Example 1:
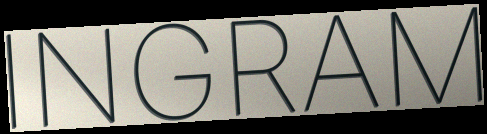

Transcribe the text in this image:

INGRAM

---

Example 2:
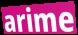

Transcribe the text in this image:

arime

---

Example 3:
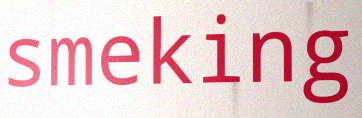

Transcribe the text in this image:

smeking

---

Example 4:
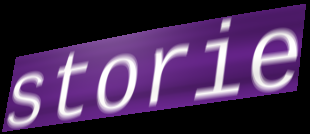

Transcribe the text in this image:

storie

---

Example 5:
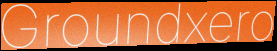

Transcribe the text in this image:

Groundxero